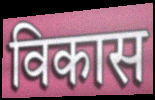
विकास